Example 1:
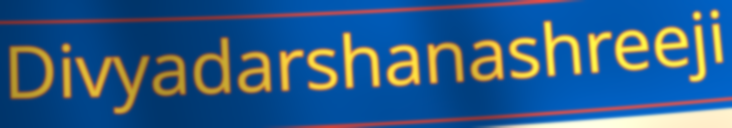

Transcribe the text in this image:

Divyadarshanashreeji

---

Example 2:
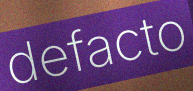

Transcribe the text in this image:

defacto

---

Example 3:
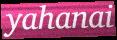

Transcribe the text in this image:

yahanai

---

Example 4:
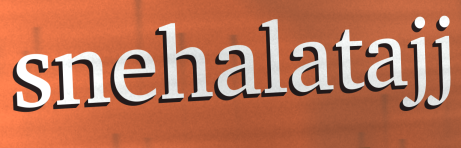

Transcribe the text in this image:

snehalatajj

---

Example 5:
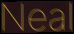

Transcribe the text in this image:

Neal